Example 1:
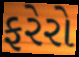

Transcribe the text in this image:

ફરેરો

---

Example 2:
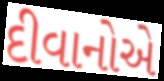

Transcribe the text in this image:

દીવાનોએ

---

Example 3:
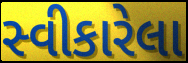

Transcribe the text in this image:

સ્વીકારેલા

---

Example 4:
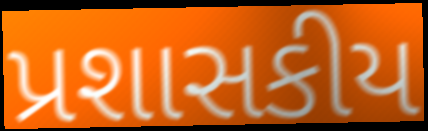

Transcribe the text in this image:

પ્રશાસકીય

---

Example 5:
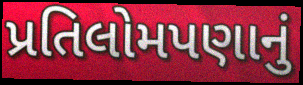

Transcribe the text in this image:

પ્રતિલોમપણાનું